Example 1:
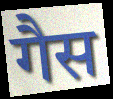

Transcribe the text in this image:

गैस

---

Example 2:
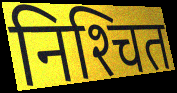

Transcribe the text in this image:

निश्चित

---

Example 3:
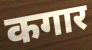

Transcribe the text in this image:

कगार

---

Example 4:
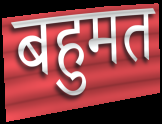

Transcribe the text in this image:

बहुमत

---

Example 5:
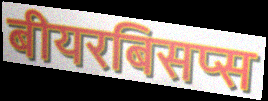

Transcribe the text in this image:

बीयरबिसप्स